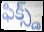
ఫిక్స్డ్